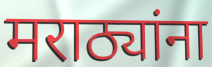
मराठ्यांना